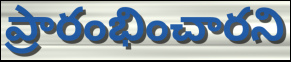
ప్రారంభించారని